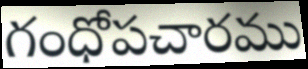
గంధోపచారము